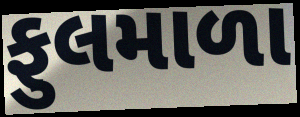
ફુલમાળા